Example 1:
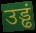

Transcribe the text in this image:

उड्ढं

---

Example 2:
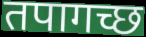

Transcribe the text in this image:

तपागच्छ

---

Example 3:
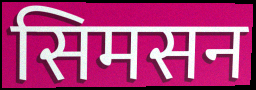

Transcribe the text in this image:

सिमसन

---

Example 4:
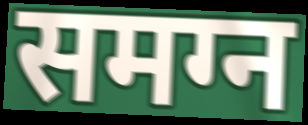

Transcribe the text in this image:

समग्न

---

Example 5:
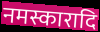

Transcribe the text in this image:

नमस्कारादि